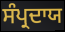
ਸੰਪ੍ਰਦਾਯ